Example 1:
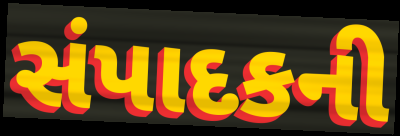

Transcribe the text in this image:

સંપાદકની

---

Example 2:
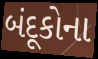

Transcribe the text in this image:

બંદૂકોના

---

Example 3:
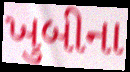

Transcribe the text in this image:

ખુબીના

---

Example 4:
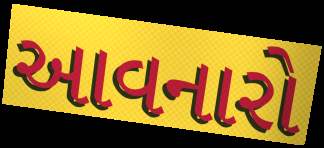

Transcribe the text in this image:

આવનારો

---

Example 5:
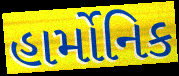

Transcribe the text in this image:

હાર્મોનિક